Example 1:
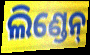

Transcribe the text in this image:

ଲିଣ୍ଡେନ୍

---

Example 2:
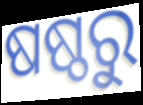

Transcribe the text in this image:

ଷଷ୍ଠରୁ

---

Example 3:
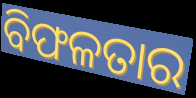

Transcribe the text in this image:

ବିଫଳତାର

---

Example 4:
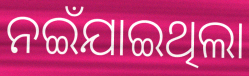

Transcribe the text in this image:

ନଇଁଯାଇଥିଲା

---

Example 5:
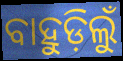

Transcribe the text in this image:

ବାହୁଡ଼ିଲୁଁ